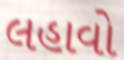
લહાવો